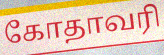
கோதாவரி